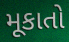
મૂકાતો